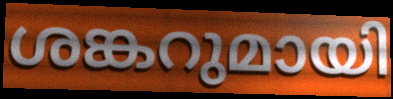
ശങ്കറുമായി